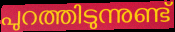
പുറത്തിടുന്നുണ്ട്